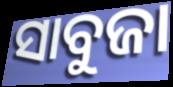
ସାବୁଜା